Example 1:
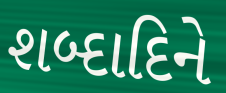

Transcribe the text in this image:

શબ્દાદિને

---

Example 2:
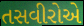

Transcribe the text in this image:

તસવીરોએ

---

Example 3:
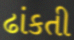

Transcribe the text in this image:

ઢાંકતી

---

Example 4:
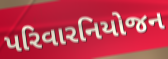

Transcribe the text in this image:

પરિવારનિયોજન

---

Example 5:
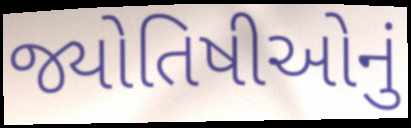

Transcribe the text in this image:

જ્યોતિષીઓનું